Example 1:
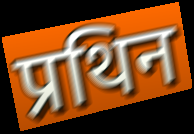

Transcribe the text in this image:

प्रथिन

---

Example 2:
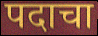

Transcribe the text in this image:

पदाचा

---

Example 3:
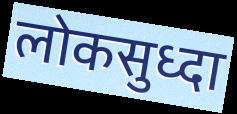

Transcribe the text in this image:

लोकसुध्दा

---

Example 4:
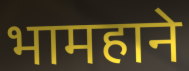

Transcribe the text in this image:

भामहाने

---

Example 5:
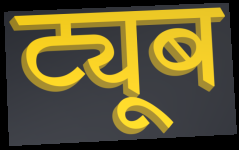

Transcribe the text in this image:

ट्यूब